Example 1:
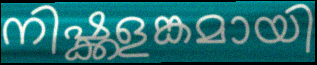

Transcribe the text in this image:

നിഷ്ക്കളങ്കമായി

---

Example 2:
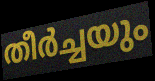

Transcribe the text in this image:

തീർച്ചയും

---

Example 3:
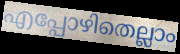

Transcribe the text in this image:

എപ്പോഴിതെല്ലാം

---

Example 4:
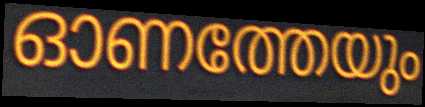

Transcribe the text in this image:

ഓണത്തേയും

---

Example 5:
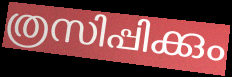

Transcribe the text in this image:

ത്രസിപ്പിക്കും